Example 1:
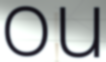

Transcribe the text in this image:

ou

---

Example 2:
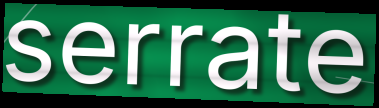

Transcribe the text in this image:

serrate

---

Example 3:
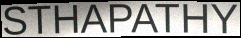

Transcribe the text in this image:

STHAPATHY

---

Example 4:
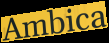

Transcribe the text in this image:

Ambica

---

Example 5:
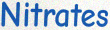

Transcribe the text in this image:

Nitrates